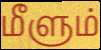
மீளும்